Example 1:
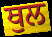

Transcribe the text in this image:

ਥੁਲ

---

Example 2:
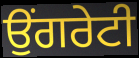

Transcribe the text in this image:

ਉਂਗਰੇਟੀ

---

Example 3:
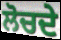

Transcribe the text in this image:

ਲੋਚਦੇ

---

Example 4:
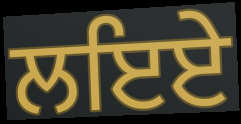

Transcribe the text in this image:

ਲਇਏ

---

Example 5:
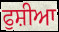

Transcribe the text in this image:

ਫੁਸ਼ੀਆ